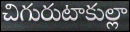
చిగురుటాకుల్లా